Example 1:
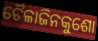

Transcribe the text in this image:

ଚୈଳାଜିନକୁଶୋ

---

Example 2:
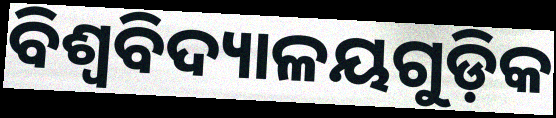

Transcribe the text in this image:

ବିଶ୍ଵବିଦ୍ୟାଳୟଗୁଡ଼ିକ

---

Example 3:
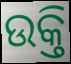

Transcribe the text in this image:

ଉକ୍ତି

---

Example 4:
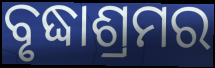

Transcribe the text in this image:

ବୃଦ୍ଧାଶ୍ରମର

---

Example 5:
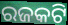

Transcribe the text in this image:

ରଜକଟି